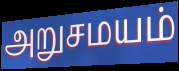
அறுசமயம்